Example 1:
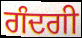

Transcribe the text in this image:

ਗੰਦਗੀ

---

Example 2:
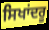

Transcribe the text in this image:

ਸਿਖਾਂਦਰੂ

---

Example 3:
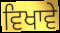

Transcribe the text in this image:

ਵਿਖਾਵੇ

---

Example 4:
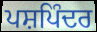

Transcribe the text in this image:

ਪਸ਼ਪਿੰਦਰ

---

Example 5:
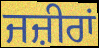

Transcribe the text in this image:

ਜਜ਼ੀਰਾਂ